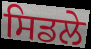
ਸਿਡਲੇ